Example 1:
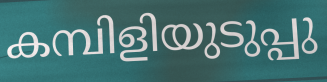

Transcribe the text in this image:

കമ്പിളിയുടുപ്പു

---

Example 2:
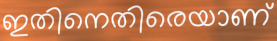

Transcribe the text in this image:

ഇതിനെതിരെയാണ്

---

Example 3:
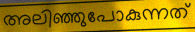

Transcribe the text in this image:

അലിഞ്ഞുപോകുന്നത്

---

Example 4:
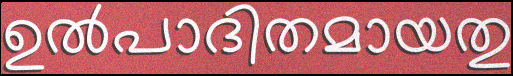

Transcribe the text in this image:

ഉൽപാദിതമായതു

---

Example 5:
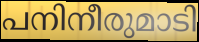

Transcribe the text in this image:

പനിനീരുമാടി